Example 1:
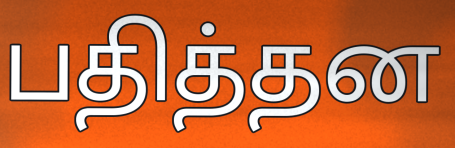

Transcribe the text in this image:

பதித்தன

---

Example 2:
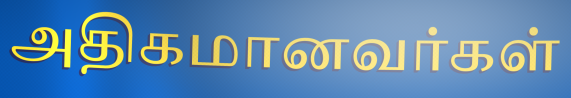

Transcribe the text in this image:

அதிகமானவர்கள்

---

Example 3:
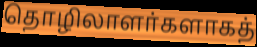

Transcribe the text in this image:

தொழிலாளர்களாகத்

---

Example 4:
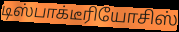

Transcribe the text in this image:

டிஸ்பாக்டீரியோசிஸ்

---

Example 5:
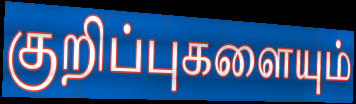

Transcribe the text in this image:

குறிப்புகளையும்